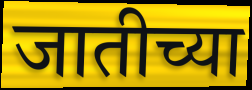
जातीच्या